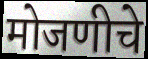
मोजणीचे